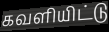
கவளியிட்டு